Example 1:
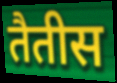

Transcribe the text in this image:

तैतीस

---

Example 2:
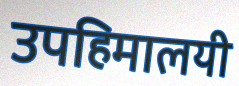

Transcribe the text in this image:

उपहिमालयी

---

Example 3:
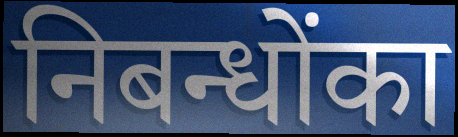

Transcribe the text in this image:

निबन्धोंका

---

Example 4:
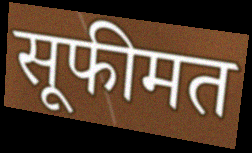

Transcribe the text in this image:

सूफीमत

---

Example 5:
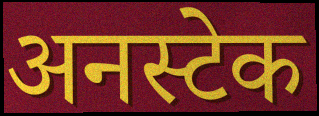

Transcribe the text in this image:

अनस्टेक